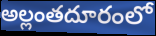
అల్లంతదూరంలో